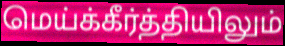
மெய்க்கீர்த்தியிலும்